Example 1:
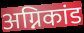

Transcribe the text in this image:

अग्निकांड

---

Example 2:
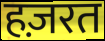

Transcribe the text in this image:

हज़रत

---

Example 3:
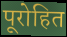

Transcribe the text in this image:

पूरोहित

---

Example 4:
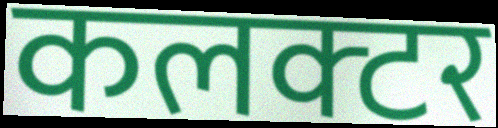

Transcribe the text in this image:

कलक्‍टर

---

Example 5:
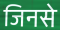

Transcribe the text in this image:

जिनसे